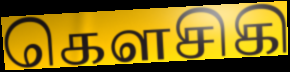
கௌசிகி